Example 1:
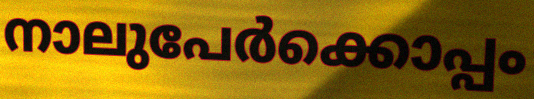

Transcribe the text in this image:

നാലുപേർക്കൊപ്പം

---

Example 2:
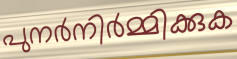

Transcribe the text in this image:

പുനർനിർമ്മിക്കുക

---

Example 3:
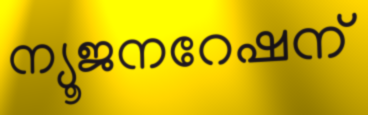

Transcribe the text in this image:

ന്യൂജനറേഷന്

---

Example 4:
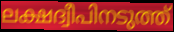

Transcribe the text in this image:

ലക്ഷദ്വീപിനടുത്ത്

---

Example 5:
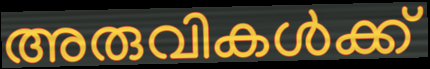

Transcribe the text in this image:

അരുവികൾക്ക്